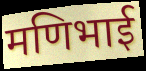
मणिभाई